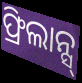
ଫ୍ରିଲାନ୍ସ୍